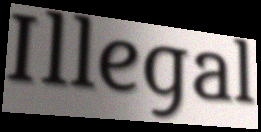
Illegal